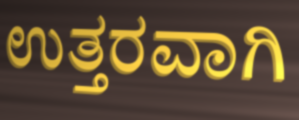
ಉತ್ತರವಾಗಿ